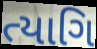
ત્યાગિ